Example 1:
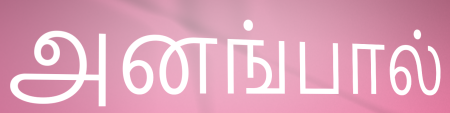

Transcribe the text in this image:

அனங்பால்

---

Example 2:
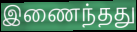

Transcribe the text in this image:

இணைந்தது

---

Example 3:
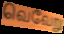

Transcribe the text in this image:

வெவேறு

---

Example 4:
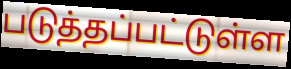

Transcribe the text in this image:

படுத்தப்பட்டுள்ள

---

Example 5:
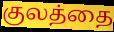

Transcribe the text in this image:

குலத்தை